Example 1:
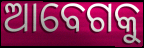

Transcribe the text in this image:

ଆବେଗକୁ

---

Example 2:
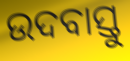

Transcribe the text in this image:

ଉଦବାସ୍ତୁ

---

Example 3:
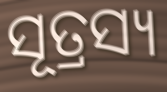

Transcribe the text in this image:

ସୂତ୍ରସ୍ୟ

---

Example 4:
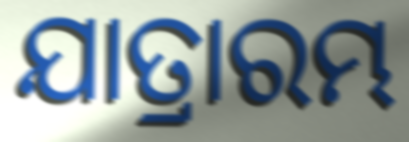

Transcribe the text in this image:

ଯାତ୍ରାରମ୍ଭ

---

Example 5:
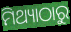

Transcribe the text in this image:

ମିଥ୍ୟାଠାରୁ